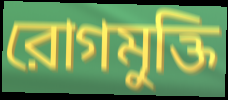
রোগমুক্তি